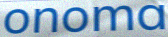
onoma